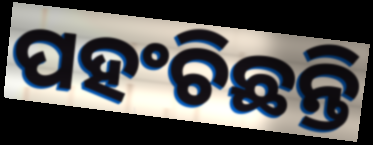
ପହଂଚିଛନ୍ତି